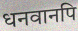
धनवानपि